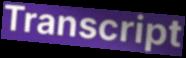
Transcript